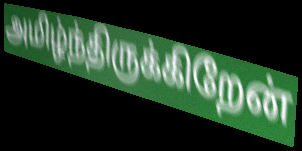
அமிழ்ந்திருக்கிறேன்